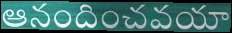
ఆనందించవయా